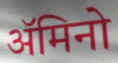
ॲमिनो